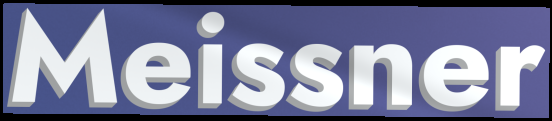
Meissner